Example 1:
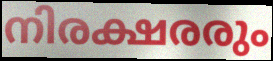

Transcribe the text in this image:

നിരക്ഷരരും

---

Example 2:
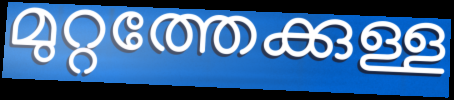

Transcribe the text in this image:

മുറ്റത്തേക്കുള്ള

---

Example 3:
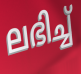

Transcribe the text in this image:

ലഭിച്ച്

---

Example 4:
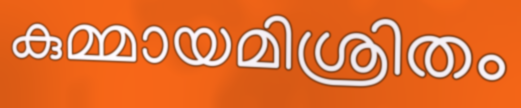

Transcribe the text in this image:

കുമ്മായമിശ്രിതം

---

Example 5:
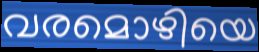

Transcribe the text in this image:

വരമൊഴിയെ